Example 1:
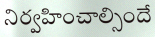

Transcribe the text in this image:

నిర్వహించాల్సిందే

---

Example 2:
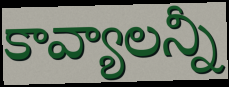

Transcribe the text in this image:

కావ్యాలన్నీ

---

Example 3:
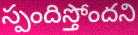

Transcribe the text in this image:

స్పందిస్తోందని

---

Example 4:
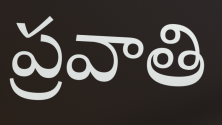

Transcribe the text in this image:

ప్రవాతి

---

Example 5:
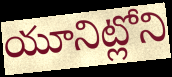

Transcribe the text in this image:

యూనిట్లోని